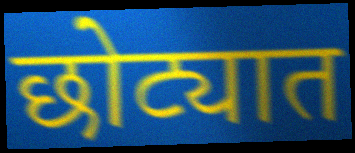
छोट्यात